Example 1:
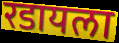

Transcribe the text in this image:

रडायला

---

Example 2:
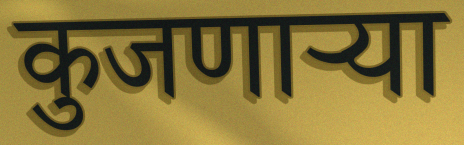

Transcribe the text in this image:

कुजणाऱ्या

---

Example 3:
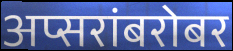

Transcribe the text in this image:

अप्सरांबरोबर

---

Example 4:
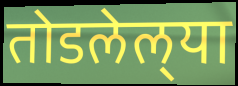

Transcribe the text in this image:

तोडलेल्या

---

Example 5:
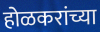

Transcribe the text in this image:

होळकरांच्या